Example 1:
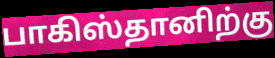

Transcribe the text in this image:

பாகிஸ்தானிற்கு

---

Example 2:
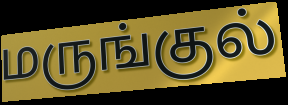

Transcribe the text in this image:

மருங்குல்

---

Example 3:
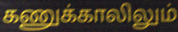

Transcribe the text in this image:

கணுக்காலிலும்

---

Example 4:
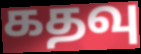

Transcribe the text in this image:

கதவு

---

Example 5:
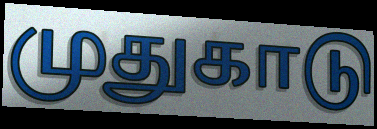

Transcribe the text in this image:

முதுகாடு